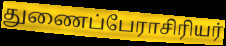
துணைப்பேராசிரியர்